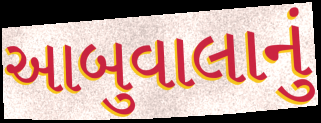
આબુવાલાનું